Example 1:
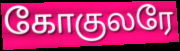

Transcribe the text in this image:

கோகுலரே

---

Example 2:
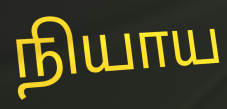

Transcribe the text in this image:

நியாய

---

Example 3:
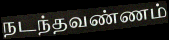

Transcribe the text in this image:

நடந்தவண்ணம்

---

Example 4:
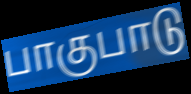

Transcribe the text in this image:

பாகுபாடு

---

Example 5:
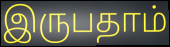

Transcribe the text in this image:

இருபதாம்